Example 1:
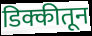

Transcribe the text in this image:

डिक्कीतून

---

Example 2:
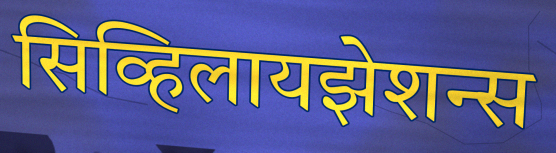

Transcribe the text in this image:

सिव्हिलायझेशन्स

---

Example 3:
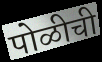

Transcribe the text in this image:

पोळीची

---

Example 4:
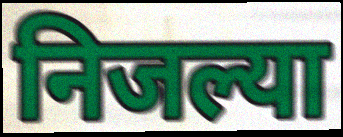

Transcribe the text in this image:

निजल्या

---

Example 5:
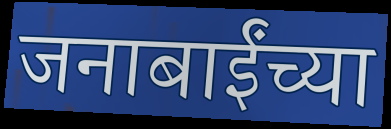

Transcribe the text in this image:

जनाबाईंच्या